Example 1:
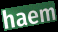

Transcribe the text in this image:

haem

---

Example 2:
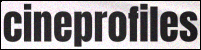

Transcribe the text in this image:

cineprofiles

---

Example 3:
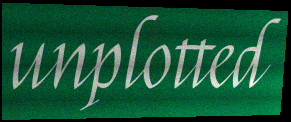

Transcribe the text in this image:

unplotted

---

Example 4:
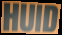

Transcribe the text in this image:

HUID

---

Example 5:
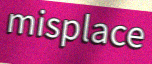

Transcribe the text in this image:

misplace